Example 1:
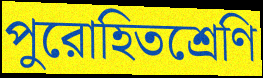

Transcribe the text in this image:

পুরোহিতশ্রেণি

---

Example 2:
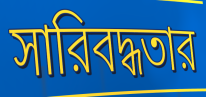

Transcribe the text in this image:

সারিবদ্ধতার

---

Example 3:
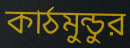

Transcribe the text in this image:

কাঠমুন্ডুর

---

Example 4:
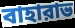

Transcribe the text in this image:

বাহারাভ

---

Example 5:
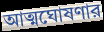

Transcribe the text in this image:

আত্মঘোষণার